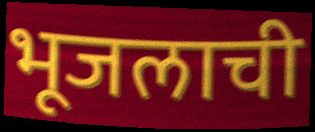
भूजलाची